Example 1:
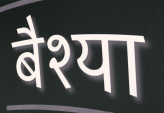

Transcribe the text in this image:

बैश्या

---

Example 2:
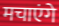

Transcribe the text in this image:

मचाएंगे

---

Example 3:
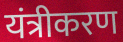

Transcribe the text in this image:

यंत्रीकरण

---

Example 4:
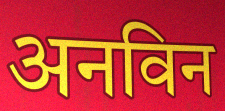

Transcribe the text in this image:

अनविन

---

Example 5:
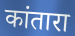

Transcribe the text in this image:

कांतारा